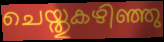
ചെയ്തുകഴിഞ്ഞു